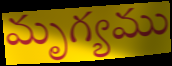
మృగ్యము